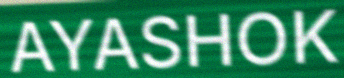
AYASHOK